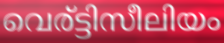
വെര്ട്ടിസീലിയം